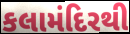
કલામંદિરથી